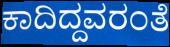
ಕಾದಿದ್ದವರಂತೆ